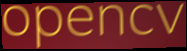
opencv